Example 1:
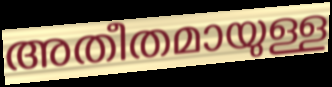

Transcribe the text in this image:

അതീതമായുള്ള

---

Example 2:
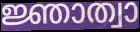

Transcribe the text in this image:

ജ്ഞാത്വാ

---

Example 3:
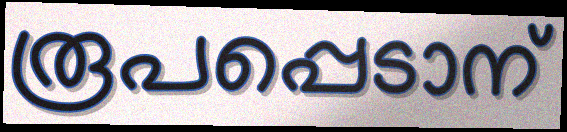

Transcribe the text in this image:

രൂപപ്പെടാന്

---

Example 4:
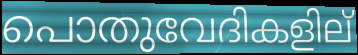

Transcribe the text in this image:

പൊതുവേദികളില്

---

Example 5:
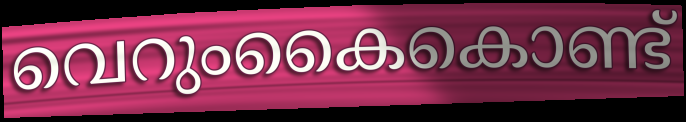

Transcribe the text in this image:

വെറുംകൈകൊണ്ട്